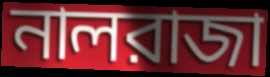
নালরাজা